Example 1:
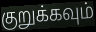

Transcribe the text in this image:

குறுக்கவும்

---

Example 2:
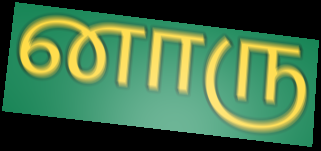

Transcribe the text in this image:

னாரு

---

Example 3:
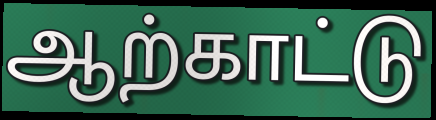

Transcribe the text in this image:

ஆற்காட்டு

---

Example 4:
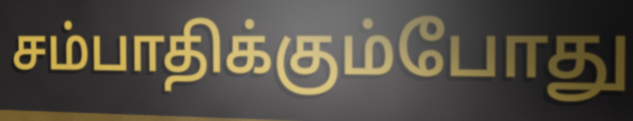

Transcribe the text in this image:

சம்பாதிக்கும்போது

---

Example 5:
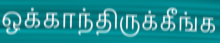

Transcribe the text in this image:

ஒக்காந்திருக்கீங்க